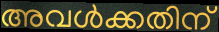
അവൾക്കതിന്